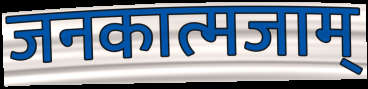
जनकात्मजाम्